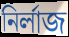
নির্লাজ